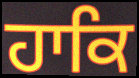
ਹਾਕਿ